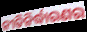
ନୀତିନିର୍ଦ୍ଧାରଣର